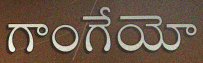
గాంగేయో